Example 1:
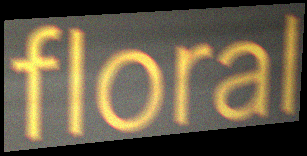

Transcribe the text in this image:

floral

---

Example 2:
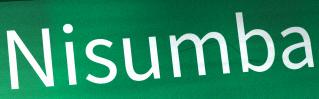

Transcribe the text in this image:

Nisumba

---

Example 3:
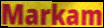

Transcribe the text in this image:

Markam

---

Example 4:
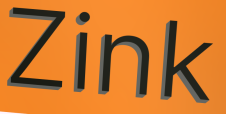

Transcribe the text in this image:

Zink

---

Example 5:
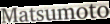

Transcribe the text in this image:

Matsumoto